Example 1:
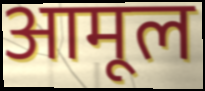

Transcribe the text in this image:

आमूल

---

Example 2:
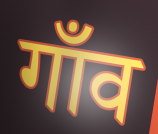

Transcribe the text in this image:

गाँव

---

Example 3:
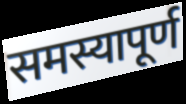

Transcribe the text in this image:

समस्यापूर्ण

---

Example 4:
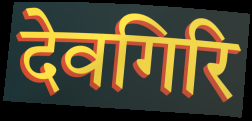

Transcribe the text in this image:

देवगिरि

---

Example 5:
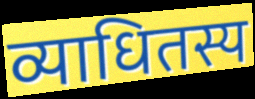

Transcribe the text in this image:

व्याधितस्य